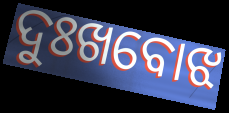
ଦୁଃଖବୋଝ